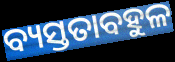
ବ୍ୟସ୍ତତାବହୁଳ